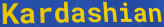
Kardashian